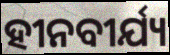
ହୀନବୀର୍ଯ୍ୟ